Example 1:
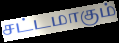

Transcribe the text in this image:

சட்டமாகும்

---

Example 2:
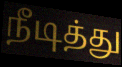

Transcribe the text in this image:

நீடித்து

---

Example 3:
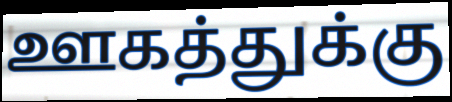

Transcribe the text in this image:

ஊகத்துக்கு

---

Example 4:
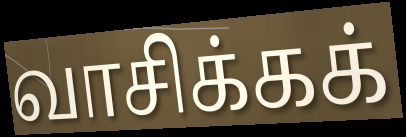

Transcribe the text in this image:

வாசிக்கக்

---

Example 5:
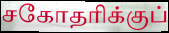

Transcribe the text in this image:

சகோதரிக்குப்